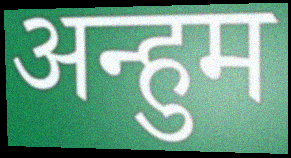
अन्हुम